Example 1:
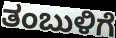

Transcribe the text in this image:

ತಂಬುಳಿಗೆ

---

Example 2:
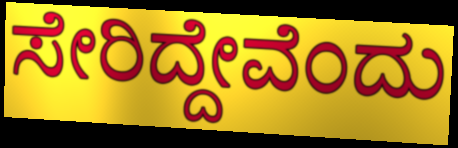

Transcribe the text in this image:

ಸೇರಿದ್ದೇವೆಂದು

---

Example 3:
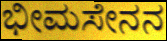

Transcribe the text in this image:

ಭೀಮಸೇನನ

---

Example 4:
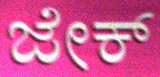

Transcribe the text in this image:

ಜೇಕ್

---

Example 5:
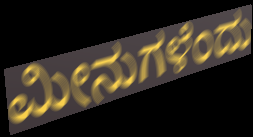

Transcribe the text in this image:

ಮೀನುಗಳೆಂದು